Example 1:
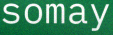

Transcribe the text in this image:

somay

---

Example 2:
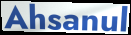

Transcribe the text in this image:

Ahsanul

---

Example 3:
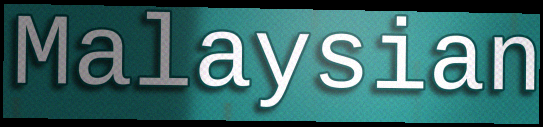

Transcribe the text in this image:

Malaysian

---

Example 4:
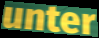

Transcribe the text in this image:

unter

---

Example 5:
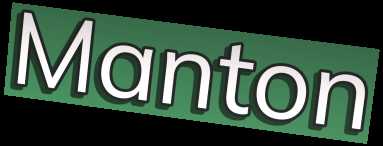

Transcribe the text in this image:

Manton